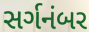
સર્ગનંબર